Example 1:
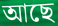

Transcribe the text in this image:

আছে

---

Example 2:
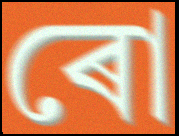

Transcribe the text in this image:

ৰো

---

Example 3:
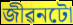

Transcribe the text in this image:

জীৱনটো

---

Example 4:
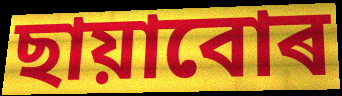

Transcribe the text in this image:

ছায়াবোৰ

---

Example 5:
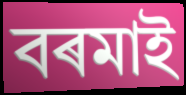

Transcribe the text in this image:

বৰমাই